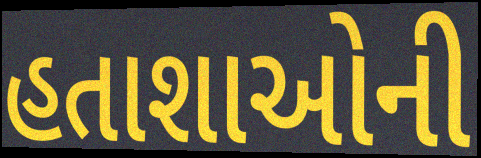
હતાશાઓની